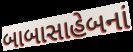
બાબાસાહેબનાં